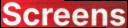
Screens